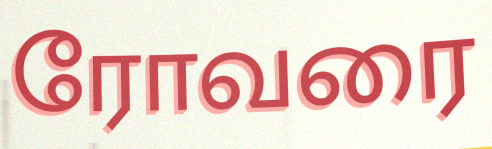
ரோவரை